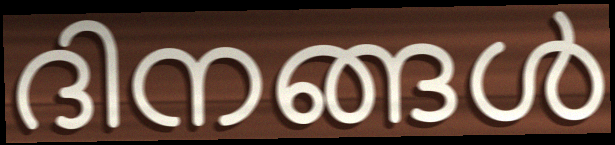
ദിനങ്ങൾ